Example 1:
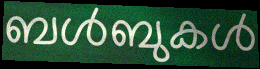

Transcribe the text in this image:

ബൾബുകൾ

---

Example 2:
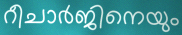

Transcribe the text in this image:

റീചാർജിനെയും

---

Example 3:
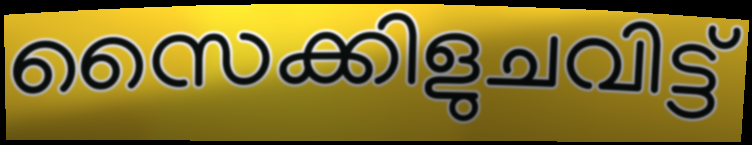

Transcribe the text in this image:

സൈക്കിളുചവിട്ട്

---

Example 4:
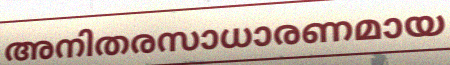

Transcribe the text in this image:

അനിതരസാധാരണമായ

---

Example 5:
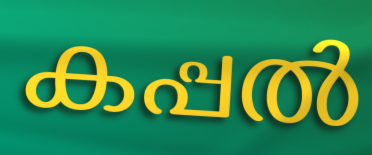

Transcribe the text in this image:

കപ്പൽ